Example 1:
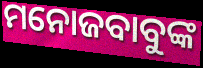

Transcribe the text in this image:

ମନୋଜବାବୁଙ୍କ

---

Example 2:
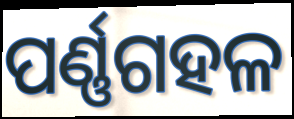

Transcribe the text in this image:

ପର୍ଣ୍ଣଗହଳ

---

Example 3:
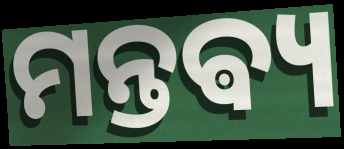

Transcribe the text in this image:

ମନ୍ତଵ୍ୟ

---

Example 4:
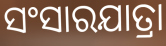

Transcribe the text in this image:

ସଂସାରଯାତ୍ରା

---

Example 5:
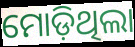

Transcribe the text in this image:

ମୋଡ଼ିଥିଲା